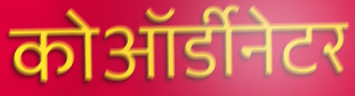
कोऑर्डीनेटर